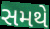
સમથે